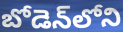
బోడెన్‌లోని